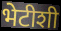
भेटीशी